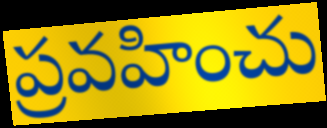
ప్రవహించు